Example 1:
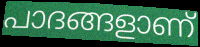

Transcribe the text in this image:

പാദങ്ങളാണ്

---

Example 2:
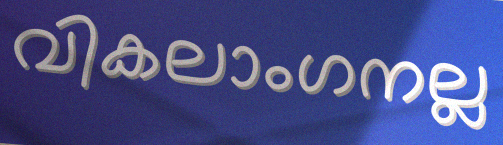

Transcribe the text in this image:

വികലാംഗനല്ല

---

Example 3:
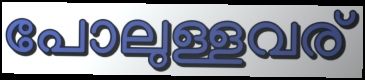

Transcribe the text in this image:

പോലുള്ളവര്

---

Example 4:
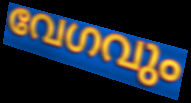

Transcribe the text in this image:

വേഗവും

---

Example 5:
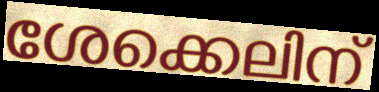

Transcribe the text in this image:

ശേക്കെലിന്